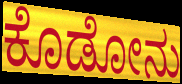
ಕೊಡೋನು